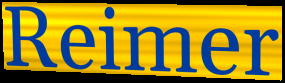
Reimer